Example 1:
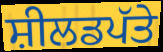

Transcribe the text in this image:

ਸ਼ੀਲਡਪੱਤੇ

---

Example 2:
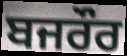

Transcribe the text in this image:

ਬਜਰੌਰ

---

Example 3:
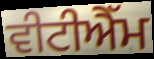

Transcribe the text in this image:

ਵੀਟੀਐੱਮ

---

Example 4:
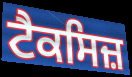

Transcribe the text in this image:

ਟੈਕਸਿਜ਼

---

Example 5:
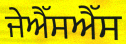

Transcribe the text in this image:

ਜੇਐੱਸਐੱਸ